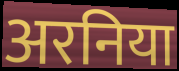
अरनिया